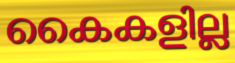
കൈകളില്ല